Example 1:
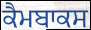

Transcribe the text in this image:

ਕੈਮਬਾਕਸ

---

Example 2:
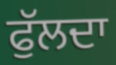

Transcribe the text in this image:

ਫੁੱਲਦਾ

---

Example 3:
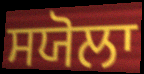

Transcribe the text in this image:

ਸਯੋਲਾ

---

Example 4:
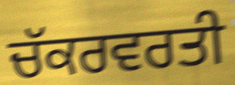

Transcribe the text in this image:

ਚੱਕਰਵਰਤੀ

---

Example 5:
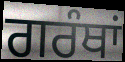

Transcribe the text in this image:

ਗਰੰਥਾਂ